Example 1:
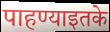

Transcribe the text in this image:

पाहण्याइतके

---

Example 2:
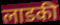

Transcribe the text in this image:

लाडकी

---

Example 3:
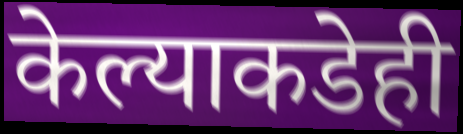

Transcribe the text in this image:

केल्याकडेही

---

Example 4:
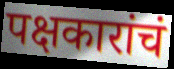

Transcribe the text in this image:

पक्षकारांचं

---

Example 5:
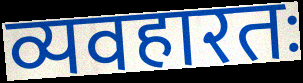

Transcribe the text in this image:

व्यवहारतः